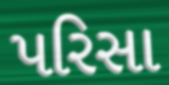
પરિસા